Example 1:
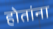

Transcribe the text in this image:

होतांना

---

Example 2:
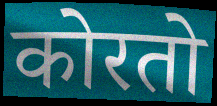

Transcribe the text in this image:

कोरतो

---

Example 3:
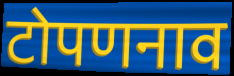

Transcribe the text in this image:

टोपणनाव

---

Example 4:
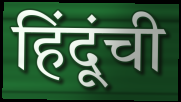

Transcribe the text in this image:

हिंदूंची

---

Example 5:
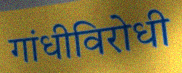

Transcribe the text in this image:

गांधीविरोधी